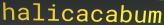
halicacabum